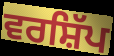
ਵਰਸ਼ਿੱਪ